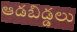
ఆడబిడ్డలు